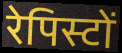
रेपिस्टों